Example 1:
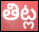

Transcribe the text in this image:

తిట్ల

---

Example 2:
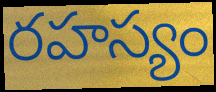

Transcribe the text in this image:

రహస్యం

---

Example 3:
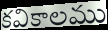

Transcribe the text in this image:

కవికాలము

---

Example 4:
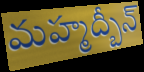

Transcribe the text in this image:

మహ్మద్బీన్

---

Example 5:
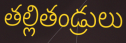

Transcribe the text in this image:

తల్లితండ్రులు